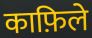
काफ़िले